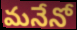
మనేనో